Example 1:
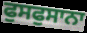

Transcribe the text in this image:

ਫੁਸਫੁਸਾਨਾ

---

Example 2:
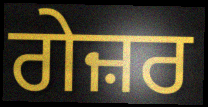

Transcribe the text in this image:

ਗੇਜ਼ਰ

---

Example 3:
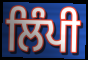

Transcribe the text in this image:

ਲਿੰਪੀ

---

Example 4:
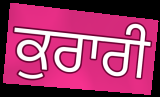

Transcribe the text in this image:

ਕੁਰਾਰੀ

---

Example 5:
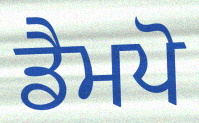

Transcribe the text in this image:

ਡੈਮਪੋ